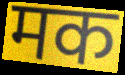
मक